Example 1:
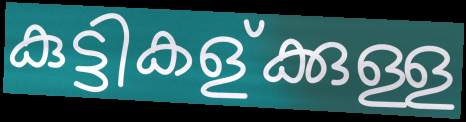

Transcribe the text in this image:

കുട്ടികള്ക്കുള്ള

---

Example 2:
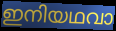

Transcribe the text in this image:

ഇനിയഥവാ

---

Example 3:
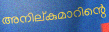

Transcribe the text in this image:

അനില്കുമാറിന്റെ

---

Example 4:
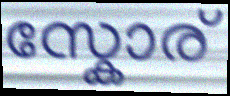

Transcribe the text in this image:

സ്കോര്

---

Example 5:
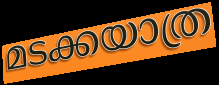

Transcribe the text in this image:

മടക്കയാത്ര